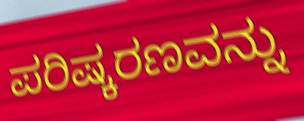
ಪರಿಷ್ಕರಣವನ್ನು